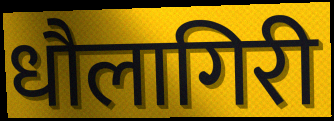
धौलागिरी